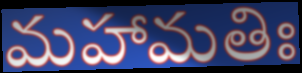
మహామతిః